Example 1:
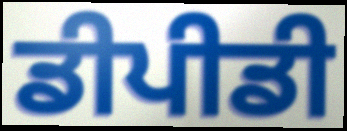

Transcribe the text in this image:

ਡੀਪੀਡੀ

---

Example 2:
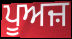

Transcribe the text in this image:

ਪੂਅਜ਼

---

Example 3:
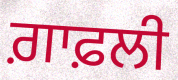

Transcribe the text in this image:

ਗ਼ਾਫ਼ਲੀ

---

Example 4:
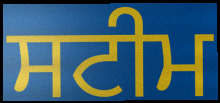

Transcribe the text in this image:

ਸਟੀਮ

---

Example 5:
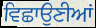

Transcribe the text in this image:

ਵਿਛਾਉਣੀਆਂ